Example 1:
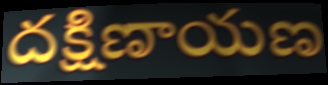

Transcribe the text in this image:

దక్షిణాయణ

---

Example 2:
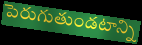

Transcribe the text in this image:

పెరుగుతుండటాన్ని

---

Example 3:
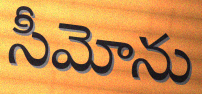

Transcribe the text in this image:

సీమోను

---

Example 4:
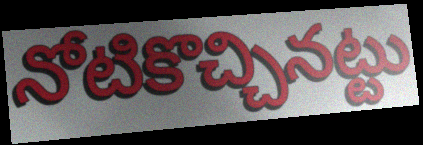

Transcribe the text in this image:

నోటికొచ్చినట్టు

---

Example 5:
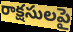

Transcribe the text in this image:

రాక్షసులపై